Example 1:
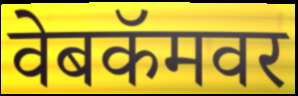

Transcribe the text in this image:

वेबकॅमवर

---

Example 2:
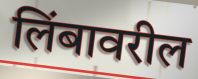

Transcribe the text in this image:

लिंबावरील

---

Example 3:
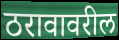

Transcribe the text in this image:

ठरावावरील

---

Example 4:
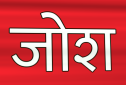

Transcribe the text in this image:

जोश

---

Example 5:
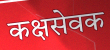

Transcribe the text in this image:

कक्षसेवक